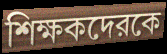
শিক্ষকদেরকে